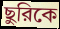
ছুরিকে